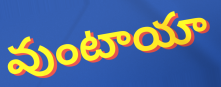
వుంటాయా